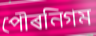
পৌৰনিগম